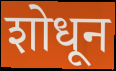
शोधून